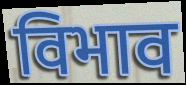
विभाव